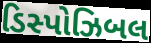
ડિસ્પોઝિબલ